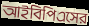
আইবিপিএসের